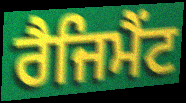
ਰੈਜਿਮੈਂਟ